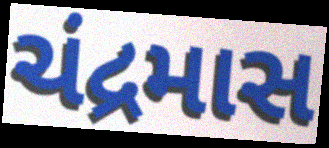
ચંદ્રમાસ